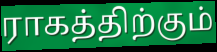
ராகத்திற்கும்